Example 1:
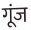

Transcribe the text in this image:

गूंज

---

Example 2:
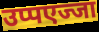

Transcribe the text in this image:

उप्पएज्जा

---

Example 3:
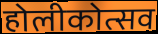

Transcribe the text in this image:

होलीकोत्सव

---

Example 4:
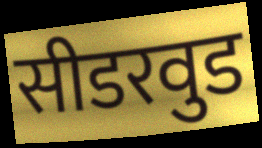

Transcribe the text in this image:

सीडरवुड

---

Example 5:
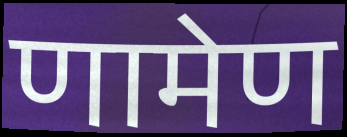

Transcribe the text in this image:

णामेण